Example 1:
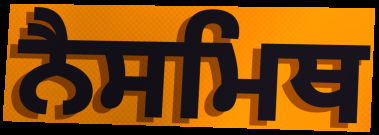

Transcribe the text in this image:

ਨੈਸਮਿਥ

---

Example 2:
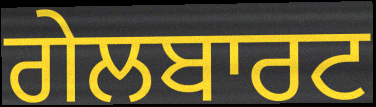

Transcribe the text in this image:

ਗੇਲਬਾਰਟ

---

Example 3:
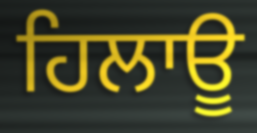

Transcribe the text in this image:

ਹਿਲਾਊ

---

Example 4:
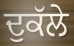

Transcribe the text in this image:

ਦੁਕੱਲੇ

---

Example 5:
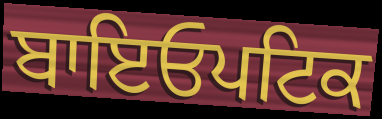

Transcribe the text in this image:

ਬਾਇਓਪਟਿਕ